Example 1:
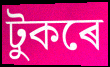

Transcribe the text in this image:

টুকৰে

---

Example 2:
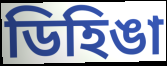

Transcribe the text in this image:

ডিহিঙা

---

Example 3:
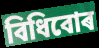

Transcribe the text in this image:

বিধিবোৰ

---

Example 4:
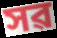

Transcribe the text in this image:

সৱ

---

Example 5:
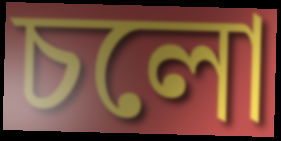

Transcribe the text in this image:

চলো